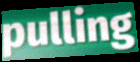
pulling